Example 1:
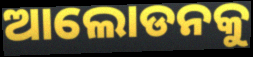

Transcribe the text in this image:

ଆଲୋଡନକୁ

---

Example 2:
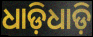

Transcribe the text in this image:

ଧାଡ଼ିଧାଡ଼ି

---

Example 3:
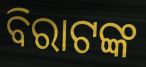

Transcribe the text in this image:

ବିରାଟଙ୍କ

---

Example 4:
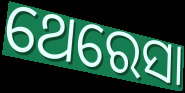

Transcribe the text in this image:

ଥେରେସା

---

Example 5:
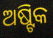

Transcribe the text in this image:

ଅଷ୍ଟିକ